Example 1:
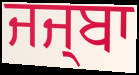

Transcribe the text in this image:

ਜਜ੍ਬਾ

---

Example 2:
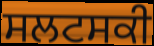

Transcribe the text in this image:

ਸਲਟਸਕੀ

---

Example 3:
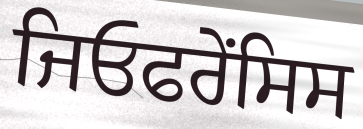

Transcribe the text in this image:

ਜਿਓਫਰੇਂਸਿਸ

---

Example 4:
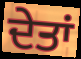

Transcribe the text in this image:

ਦੇਤਾਂ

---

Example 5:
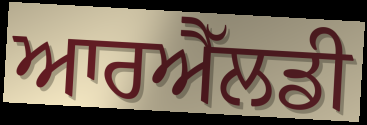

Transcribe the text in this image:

ਆਰਐੱਲਡੀ